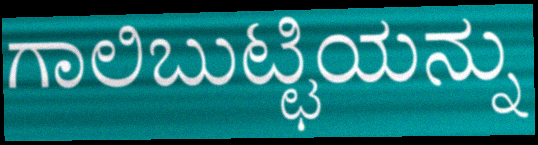
ಗಾಲಿಬುಟ್ಟಿಯನ್ನು